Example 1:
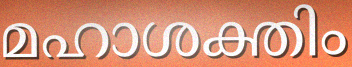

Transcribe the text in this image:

മഹാശക്തിം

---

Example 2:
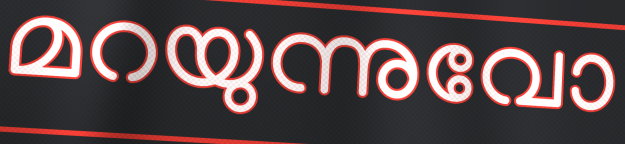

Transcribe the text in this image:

മറയുന്നുവോ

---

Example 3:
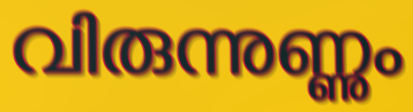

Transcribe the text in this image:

വിരുന്നുണ്ണും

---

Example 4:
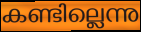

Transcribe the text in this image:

കണ്ടില്ലെന്നു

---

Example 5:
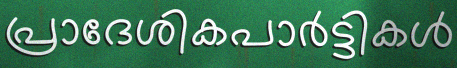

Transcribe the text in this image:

പ്രാദേശികപാർട്ടികൾ